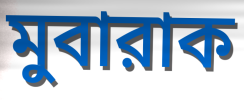
মুবারাক